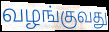
வழங்குவது